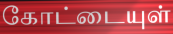
கோட்டையுள்